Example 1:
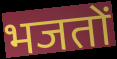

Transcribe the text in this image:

भजतों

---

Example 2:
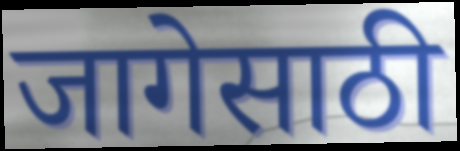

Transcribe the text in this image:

जागेसाठी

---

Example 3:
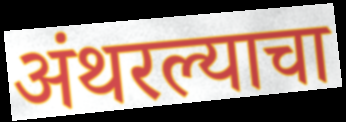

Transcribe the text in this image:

अंथरल्याचा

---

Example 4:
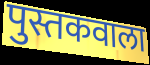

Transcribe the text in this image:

पुस्तकवाला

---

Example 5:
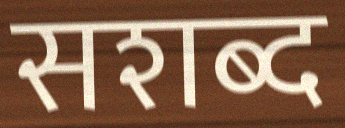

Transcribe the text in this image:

सशब्द